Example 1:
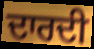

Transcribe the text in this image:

ਦਾਰਦੀ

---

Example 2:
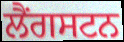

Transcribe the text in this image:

ਲੈਂਗਸਟਨ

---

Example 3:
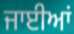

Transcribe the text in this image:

ਜਾਈਆਂ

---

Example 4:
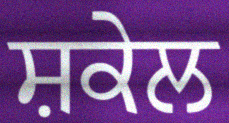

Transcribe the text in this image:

ਸ਼ਕੇਲ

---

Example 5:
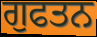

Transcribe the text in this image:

ਗੁਫਤਨ